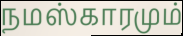
நமஸ்காரமும்